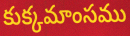
కుక్కమాంసము